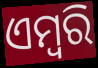
ଏମ୍ବରି